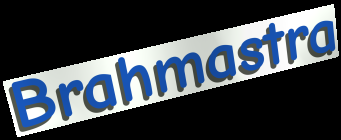
Brahmastra